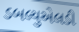
ડબલ્યુએલડી